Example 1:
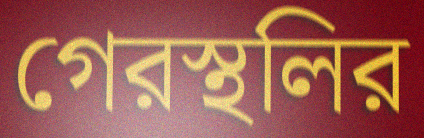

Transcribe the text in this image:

গেরস্থলির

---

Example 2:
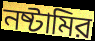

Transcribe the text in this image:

নষ্টামির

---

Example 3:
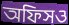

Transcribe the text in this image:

অফিসও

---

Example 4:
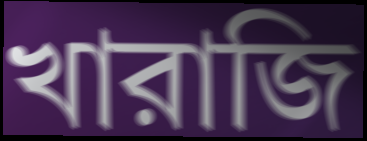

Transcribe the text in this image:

খারাজি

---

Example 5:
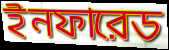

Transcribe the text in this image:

ইনফারেড